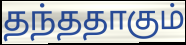
தந்ததாகும்